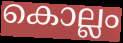
കൊല്ലം